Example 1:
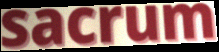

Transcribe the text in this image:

sacrum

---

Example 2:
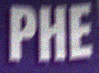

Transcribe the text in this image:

PHE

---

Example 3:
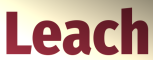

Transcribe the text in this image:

Leach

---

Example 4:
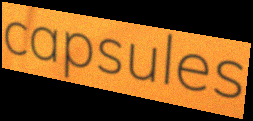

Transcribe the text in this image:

capsules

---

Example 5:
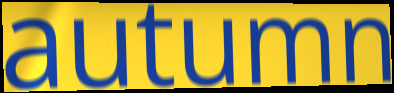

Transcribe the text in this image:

autumn